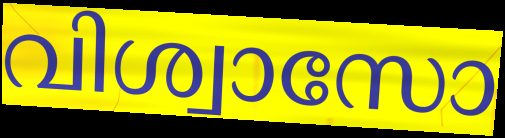
വിശ്വാസോ